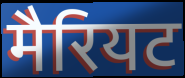
मैरियट